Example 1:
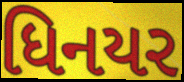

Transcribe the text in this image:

ધિનયર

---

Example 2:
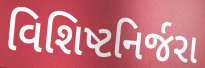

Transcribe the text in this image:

વિશિષ્ટનિર્જરા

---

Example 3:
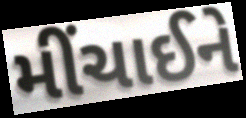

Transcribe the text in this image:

મીંચાઈને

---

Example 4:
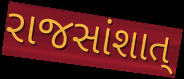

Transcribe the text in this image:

રાજસાંશાત્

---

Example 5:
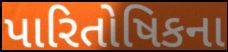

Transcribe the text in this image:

પારિતોષિકના